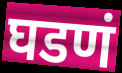
घडणं